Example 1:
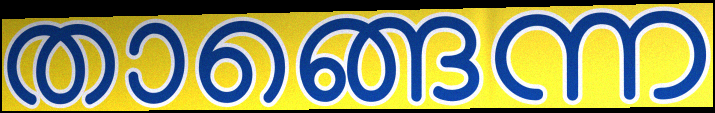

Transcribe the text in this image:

താങ്ങെന്ന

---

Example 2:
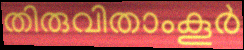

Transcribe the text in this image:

തിരുവിതാംകൂർ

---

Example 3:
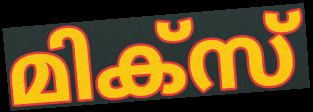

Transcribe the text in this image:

മിക്സ്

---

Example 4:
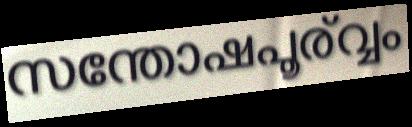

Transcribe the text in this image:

സന്തോഷപൂര്വ്വം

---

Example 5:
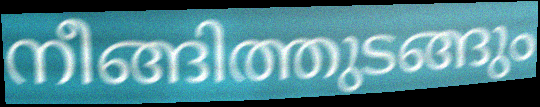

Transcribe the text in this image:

നീങ്ങിത്തുടങ്ങും